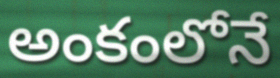
అంకంలోనే